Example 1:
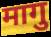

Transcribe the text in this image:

मागु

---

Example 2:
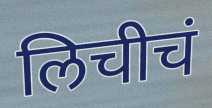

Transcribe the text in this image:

लिचीचं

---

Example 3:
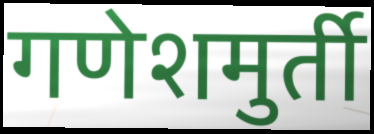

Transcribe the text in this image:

गणेशमुर्ती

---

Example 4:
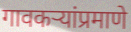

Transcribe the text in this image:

गावकऱ्यांप्रमाणे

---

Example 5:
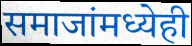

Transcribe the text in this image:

समाजांमध्येही